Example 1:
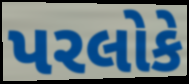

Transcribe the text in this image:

પરલોકે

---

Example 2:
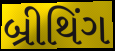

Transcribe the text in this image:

બ્રીથિંગ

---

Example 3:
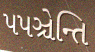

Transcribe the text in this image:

પપઞ્ચેન્તિ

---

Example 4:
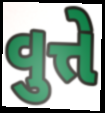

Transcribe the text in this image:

વુત્તે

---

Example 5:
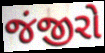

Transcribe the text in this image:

જંજીરો